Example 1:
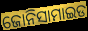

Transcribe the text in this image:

ଜୋନିସାମାଇଡ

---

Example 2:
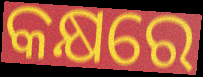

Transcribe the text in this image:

କକ୍ଷରେ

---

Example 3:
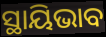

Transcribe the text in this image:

ସ୍ଥାୟିଭାବ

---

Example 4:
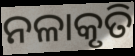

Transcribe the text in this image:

ନଳାକୃତି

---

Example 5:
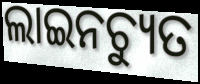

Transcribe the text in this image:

ଲାଇନଚ୍ୟୁତ